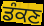
ਡੰਕਣ